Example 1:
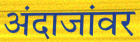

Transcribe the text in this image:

अंदाजांवर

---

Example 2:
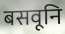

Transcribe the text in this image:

बसवूनि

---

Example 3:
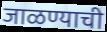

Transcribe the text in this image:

जाळण्याची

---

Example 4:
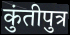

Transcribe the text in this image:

कुंतीपुत्र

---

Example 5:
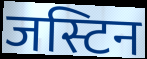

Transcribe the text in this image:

जस्टिन